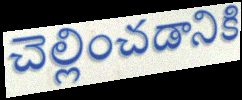
చెల్లించడానికి